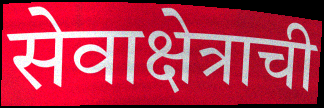
सेवाक्षेत्राची